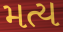
મત્ય